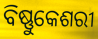
ବିଷ୍ଣୁକେଶରୀ